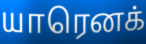
யாரெனக்